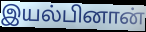
இயல்பினான்